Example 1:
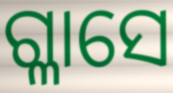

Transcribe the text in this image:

ଗ୍ଳାସେ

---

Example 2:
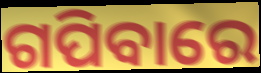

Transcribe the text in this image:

ଗପିବାରେ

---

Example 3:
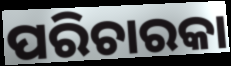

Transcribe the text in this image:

ପରିଚାରକା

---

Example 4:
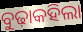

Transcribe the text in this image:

ବୁଢ଼ାକହିଲା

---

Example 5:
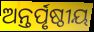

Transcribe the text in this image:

ଅନ୍ତର୍ପୃଷ୍ଠୀୟ